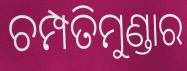
ଚମ୍ପତିମୁଣ୍ଡାର